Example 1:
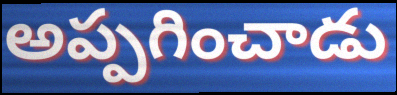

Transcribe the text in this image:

అప్పగించాడు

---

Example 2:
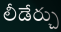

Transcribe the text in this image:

లీడేర్చు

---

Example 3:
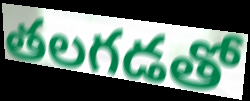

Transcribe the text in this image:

తలగడతో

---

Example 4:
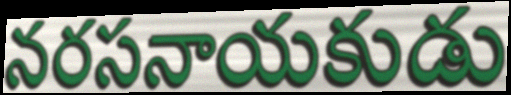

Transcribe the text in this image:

నరసనాయకుడు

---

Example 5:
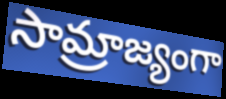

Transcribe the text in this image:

సామ్రాజ్యంగా